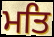
ਮਤਿ